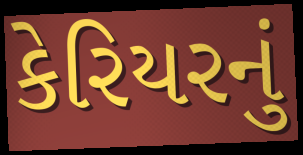
કેરિયરનું